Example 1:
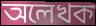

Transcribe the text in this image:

অলেখক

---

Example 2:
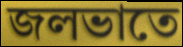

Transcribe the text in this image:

জলভাতে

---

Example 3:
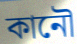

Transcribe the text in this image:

কানৌ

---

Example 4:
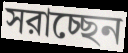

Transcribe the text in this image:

সরাচ্ছেন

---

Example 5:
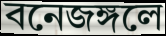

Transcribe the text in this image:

বনেজঙ্গলে